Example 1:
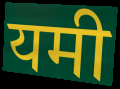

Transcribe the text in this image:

यमी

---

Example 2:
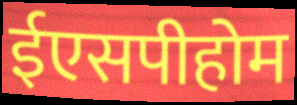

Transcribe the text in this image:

ईएसपीहोम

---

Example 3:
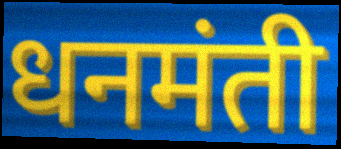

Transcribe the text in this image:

धनमंती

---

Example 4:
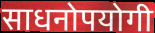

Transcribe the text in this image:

साधनोपयोगी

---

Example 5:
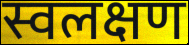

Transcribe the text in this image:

स्वलक्षण